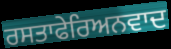
ਰਸਤਾਫੇਰਿਅਨਵਾਦ